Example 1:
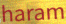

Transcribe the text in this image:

haram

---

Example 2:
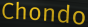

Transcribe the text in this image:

Chondo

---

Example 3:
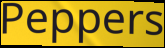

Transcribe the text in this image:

Peppers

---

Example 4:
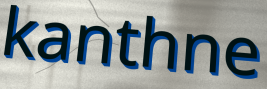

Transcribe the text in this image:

kanthne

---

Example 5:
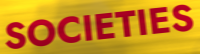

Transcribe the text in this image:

SOCIETIES